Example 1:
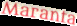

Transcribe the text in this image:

Maranta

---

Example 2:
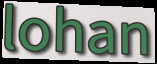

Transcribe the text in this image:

lohan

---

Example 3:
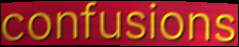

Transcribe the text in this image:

confusions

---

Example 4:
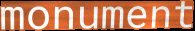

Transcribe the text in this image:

monument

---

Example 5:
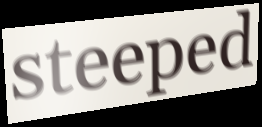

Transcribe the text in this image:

steeped